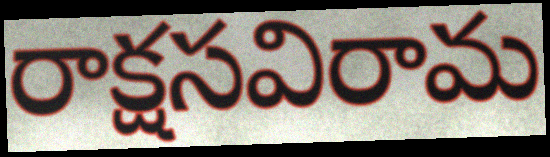
రాక్షసవిరామ